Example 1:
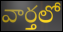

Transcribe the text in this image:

వార్తలో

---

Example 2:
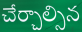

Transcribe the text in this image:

చేర్చాల్సిన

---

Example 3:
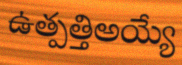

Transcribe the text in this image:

ఉత్పత్తిఅయ్యే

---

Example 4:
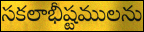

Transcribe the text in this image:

సకలాభీష్టములను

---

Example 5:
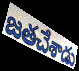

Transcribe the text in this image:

జతచేశాడు